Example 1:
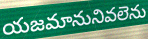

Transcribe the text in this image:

యజమానునివలెను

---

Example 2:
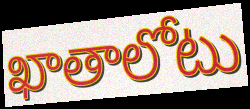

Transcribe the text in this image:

ఖాతాలోటు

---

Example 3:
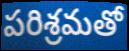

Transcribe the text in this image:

పరిశ్రమతో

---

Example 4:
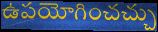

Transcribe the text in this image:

ఉపయోగించచ్చు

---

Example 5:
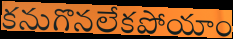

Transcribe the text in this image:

కనుగొనలేకపోయాం